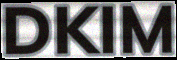
DKIM